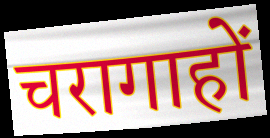
चरागाहों